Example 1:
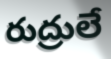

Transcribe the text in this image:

రుద్రులే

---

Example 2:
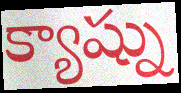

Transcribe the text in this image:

క్యాష్ను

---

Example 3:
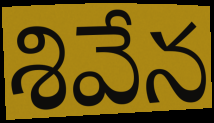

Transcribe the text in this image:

శివేన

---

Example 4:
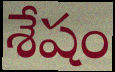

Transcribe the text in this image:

శేషం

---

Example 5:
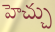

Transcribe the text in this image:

హెచ్చు